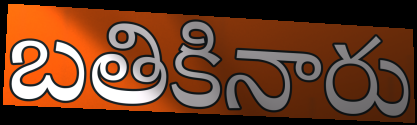
బతికినారు